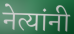
नेत्यांनी